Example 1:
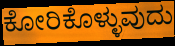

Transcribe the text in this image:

ಕೋರಿಕೊಳ್ಳುವುದು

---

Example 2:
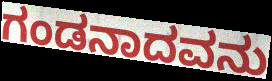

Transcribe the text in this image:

ಗಂಡನಾದವನು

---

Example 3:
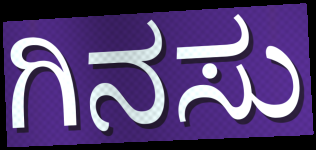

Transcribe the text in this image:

ಗಿನಸು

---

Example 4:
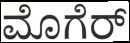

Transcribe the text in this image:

ಮೊಗೆರ್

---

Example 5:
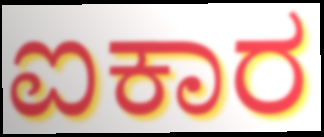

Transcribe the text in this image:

ಐಕಾರ